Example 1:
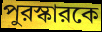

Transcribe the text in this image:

পুরস্কারকে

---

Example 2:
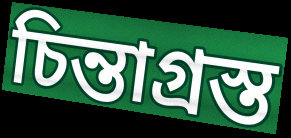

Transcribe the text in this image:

চিন্তাগ্রস্ত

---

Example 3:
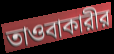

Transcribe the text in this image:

তাওবাকারীর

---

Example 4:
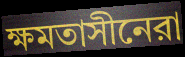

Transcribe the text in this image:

ক্ষমতাসীনেরা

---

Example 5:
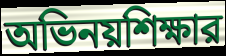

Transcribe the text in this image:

অভিনয়শিক্ষার